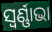
ସ୍ୱର୍ଣ୍ଣାଭା